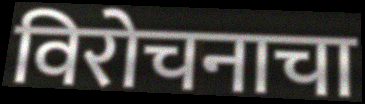
विरोचनाचा